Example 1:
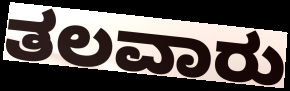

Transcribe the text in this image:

ತಲವಾರು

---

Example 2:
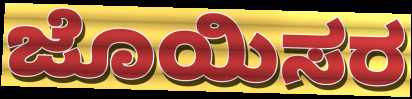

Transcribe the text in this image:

ಜೊಯಿಸರ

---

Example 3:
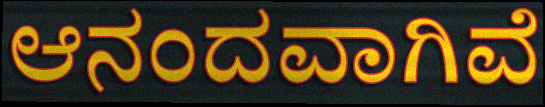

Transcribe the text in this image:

ಆನಂದವಾಗಿವೆ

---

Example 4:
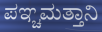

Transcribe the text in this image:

ಪಞ್ಚಮತ್ತಾನಿ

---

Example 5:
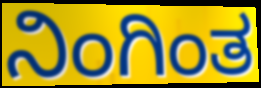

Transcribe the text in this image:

ನಿಂಗಿಂತ